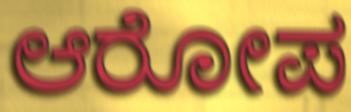
ಆರೋಪ